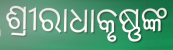
ଶ୍ରୀରାଧାକୃଷ୍ଣଙ୍କ